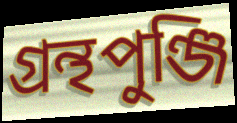
গ্রন্থপুঞ্জি